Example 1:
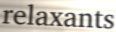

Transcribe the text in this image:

relaxants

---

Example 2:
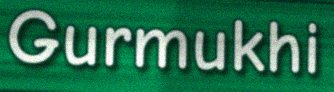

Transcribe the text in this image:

Gurmukhi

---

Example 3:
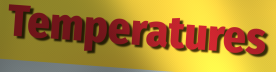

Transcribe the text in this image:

Temperatures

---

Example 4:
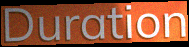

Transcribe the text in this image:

Duration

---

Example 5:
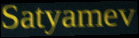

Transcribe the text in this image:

Satyamev